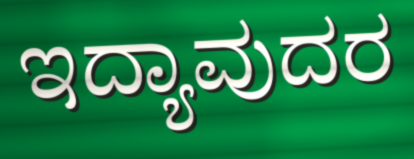
ಇದ್ಯಾವುದರ